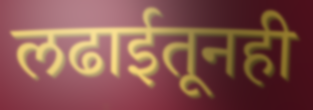
लढाईतूनही